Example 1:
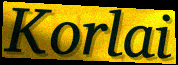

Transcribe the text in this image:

Korlai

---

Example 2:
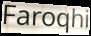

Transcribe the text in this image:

Faroqhi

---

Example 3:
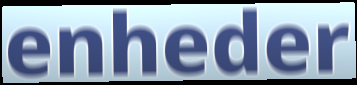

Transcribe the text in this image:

enheder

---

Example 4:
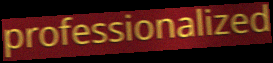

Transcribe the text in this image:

professionalized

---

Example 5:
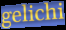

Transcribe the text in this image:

gelichi